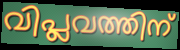
വിപ്ലവത്തിന്